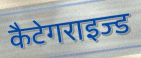
कैटेगराइज्ड